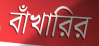
বাঁখারির